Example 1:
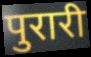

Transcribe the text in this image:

पुरारी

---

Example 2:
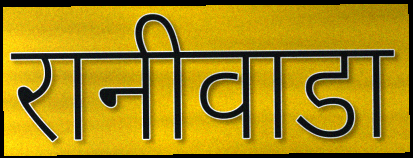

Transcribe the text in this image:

रानीवाडा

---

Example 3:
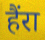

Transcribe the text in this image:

हैंरा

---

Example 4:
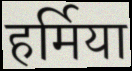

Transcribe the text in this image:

हर्मिया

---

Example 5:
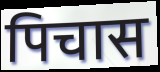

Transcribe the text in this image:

पिचास